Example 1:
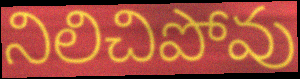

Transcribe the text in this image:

నిలిచిపోవు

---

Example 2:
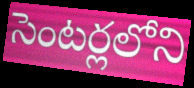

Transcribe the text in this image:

సెంటర్లలోని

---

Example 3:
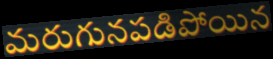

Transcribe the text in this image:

మరుగునపడిపోయిన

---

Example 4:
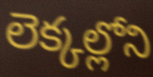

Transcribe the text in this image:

లెక్కల్లోని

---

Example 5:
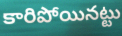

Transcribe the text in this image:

కారిపోయినట్టు